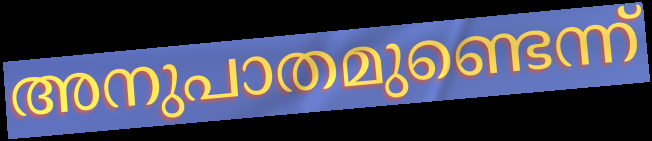
അനുപാതമുണ്ടെന്ന്